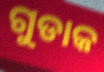
ଗୁଡାକ